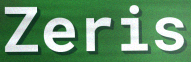
Zeris